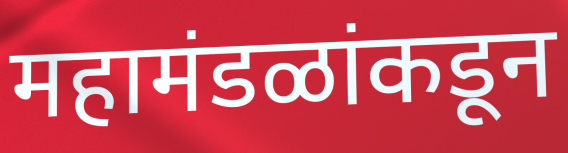
महामंडळांकडून